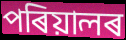
পৰিয়ালৰ